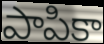
పాపికా